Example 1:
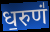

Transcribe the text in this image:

ध॒रुणं॑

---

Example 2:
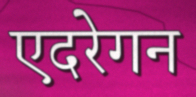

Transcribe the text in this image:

एदरेगन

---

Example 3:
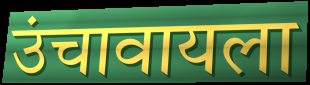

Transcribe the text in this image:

उंचावायला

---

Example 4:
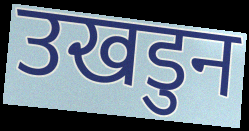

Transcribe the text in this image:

उखडुन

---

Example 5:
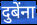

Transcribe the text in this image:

दुबेंना